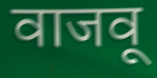
वाजवू